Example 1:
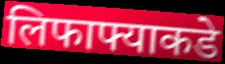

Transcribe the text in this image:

लिफाफ्याकडे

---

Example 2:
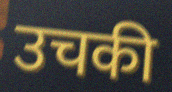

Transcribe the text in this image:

उचकी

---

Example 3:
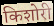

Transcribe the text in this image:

किशोरी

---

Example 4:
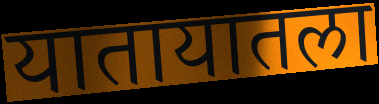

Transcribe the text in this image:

यातायातला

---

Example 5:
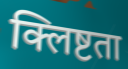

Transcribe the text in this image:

क्लिष्टता